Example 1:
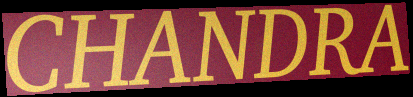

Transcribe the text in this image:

CHANDRA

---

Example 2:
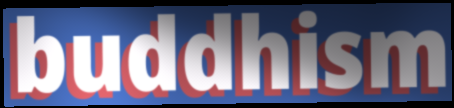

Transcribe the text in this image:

buddhism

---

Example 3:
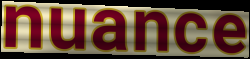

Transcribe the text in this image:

nuance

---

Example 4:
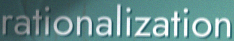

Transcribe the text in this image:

rationalization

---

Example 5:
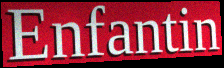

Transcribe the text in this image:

Enfantin